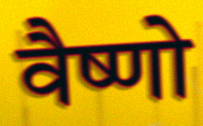
वैष्णो